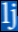
lj